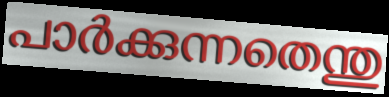
പാർക്കുന്നതെന്തു